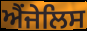
ਐਂਜੇਲਿਸ